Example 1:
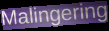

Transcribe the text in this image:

Malingering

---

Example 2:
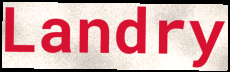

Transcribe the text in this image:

Landry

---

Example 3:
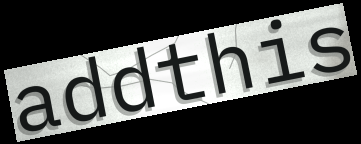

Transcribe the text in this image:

addthis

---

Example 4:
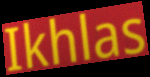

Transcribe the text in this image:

Ikhlas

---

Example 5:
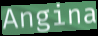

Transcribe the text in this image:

Angina